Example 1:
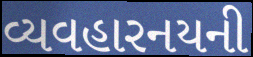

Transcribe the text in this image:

વ્યવહારનયની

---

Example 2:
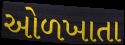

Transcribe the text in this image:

ઓળખાતા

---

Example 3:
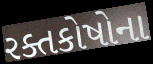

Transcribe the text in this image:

રક્તકોષોના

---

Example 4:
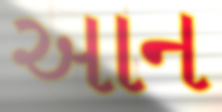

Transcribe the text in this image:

આન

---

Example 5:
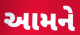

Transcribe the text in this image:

આમને